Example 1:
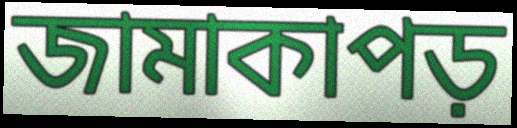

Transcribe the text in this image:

জামাকাপড়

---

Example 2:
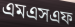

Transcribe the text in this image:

এমএসএফ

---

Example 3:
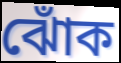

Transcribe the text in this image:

ঝোঁক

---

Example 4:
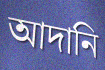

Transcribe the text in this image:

আদানি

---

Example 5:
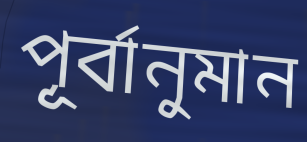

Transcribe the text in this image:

পূর্বানুমান